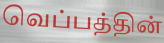
வெப்பத்தின்